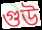
গুউ